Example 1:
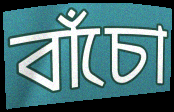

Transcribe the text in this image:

বাঁচো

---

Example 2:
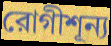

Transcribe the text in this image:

রোগীশূন্য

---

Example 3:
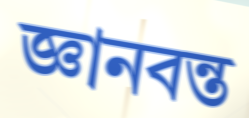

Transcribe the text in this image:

জ্ঞানবন্ত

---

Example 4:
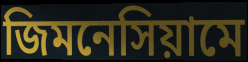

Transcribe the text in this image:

জিমনেসিয়ামে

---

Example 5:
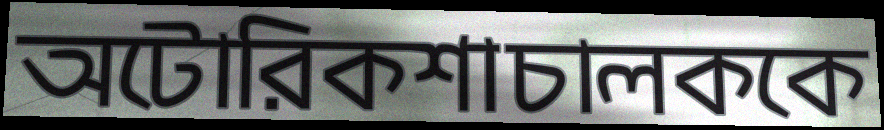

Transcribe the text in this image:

অটোরিকশাচালককে